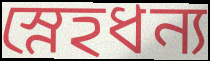
স্নেহধন্য